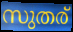
സുതര്